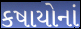
કષાયોનાં